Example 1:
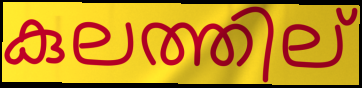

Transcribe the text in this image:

കുലത്തില്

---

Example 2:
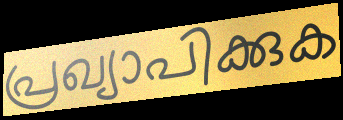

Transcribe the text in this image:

പ്രഖ്യാപിക്കുക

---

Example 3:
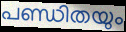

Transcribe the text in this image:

പണ്ഡിതയും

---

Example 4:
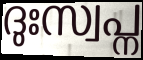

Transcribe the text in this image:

ദുഃസ്വപ്ന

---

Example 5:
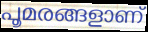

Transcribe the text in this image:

പൂമരങ്ങളാണ്